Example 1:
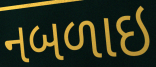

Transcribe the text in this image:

નબળાઇ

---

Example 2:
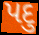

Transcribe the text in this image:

પદુ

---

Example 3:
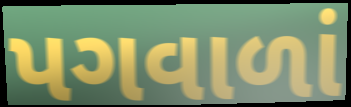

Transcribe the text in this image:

પગવાળાં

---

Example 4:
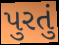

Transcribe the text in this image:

પુરતું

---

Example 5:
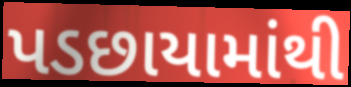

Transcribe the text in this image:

પડછાયામાંથી